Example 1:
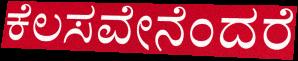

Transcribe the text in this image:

ಕೆಲಸವೇನೆಂದರೆ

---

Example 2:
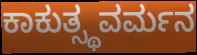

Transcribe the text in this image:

ಕಾಕುತ್ಸ್ಥವರ್ಮನ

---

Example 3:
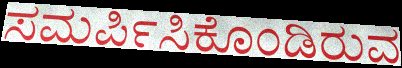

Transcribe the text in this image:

ಸಮರ್ಪಿಸಿಕೊಂಡಿರುವ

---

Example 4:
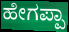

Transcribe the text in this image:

ಹೇಗಪ್ಪಾ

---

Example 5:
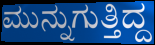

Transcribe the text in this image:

ಮುನ್ನುಗುತ್ತಿದ್ದ